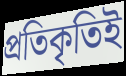
প্রতিকৃতিই